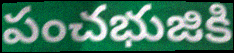
పంచభుజికి